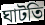
ঘাটতি